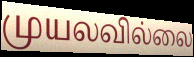
முயலவில்லை